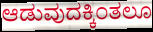
ಆಡುವುದಕ್ಕಿಂತಲೂ